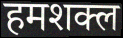
हमशक्ल